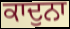
ਕਾਦੁਨਾ